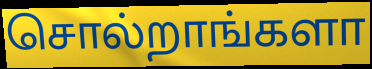
சொல்றாங்களா